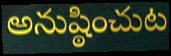
అనుష్ఠించుట